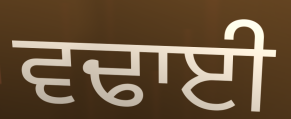
ਵਢਾਈ